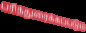
பரிந்துரைக்கப்படும்